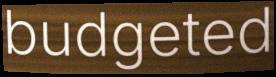
budgeted